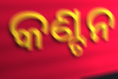
କଣ୍ଟନ